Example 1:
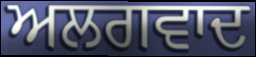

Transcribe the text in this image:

ਅਲਗਵਾਦ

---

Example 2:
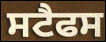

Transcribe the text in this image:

ਸਟੈਫਸ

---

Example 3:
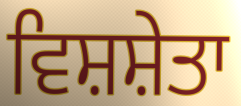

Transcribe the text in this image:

ਵਿਸ਼ਸ਼ੇਤਾ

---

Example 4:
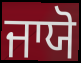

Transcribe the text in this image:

ਜਾਯੋ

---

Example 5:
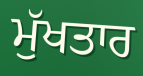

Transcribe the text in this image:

ਮੁੱਖਤਾਰ